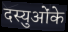
दस्युओंके